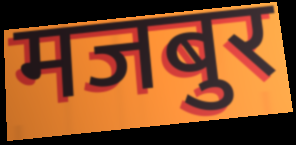
मजबुर